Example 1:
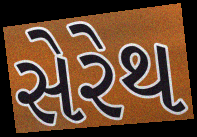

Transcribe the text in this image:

સેરેથ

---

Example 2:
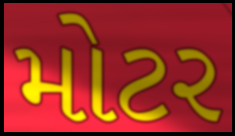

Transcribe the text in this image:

મોટર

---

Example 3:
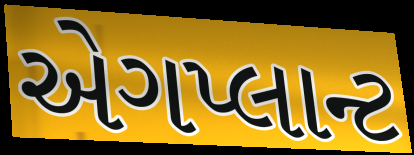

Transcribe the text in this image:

એગપ્લાન્ટ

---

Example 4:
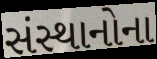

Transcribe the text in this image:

સંસ્થાનોના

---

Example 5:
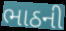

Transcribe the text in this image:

ભાઠની